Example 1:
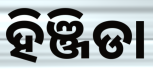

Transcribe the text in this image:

ହିଞ୍ଜିଡା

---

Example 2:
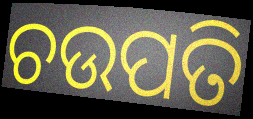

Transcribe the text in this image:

ଚଉପତି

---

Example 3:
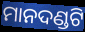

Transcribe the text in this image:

ମାନଦଣ୍ଡଟି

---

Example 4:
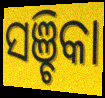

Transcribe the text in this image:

ସଞ୍ଚିକା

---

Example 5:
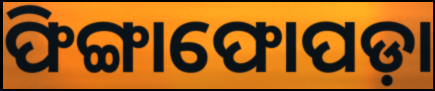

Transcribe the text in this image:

ଫିଙ୍ଗାଫୋପଡ଼ା